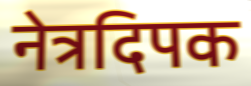
नेत्रदिपक